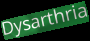
Dysarthria